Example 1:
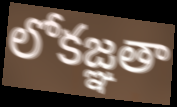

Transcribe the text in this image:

లోకజ్ఞతా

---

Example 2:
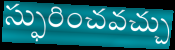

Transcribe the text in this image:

స్ఫురించవచ్చు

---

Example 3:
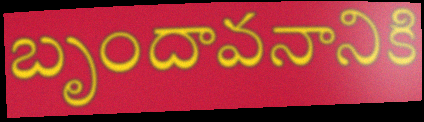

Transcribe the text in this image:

బృందావనానికి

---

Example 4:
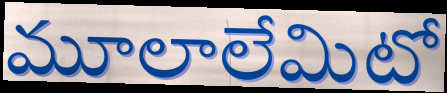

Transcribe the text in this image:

మూలాలేమిటో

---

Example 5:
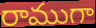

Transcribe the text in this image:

రాముగా